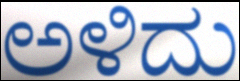
ಅಳಿದು